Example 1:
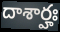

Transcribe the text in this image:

దాశార్హః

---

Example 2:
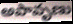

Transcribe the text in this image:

అపావృణు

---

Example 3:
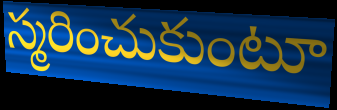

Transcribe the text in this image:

స్మరించుకుంటూ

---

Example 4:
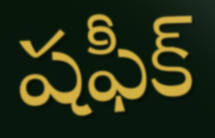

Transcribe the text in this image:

షఫీక్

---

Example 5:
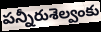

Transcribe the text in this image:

పన్నీరుశెల్వంకు